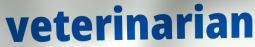
veterinarian